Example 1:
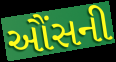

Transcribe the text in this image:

ઔંસની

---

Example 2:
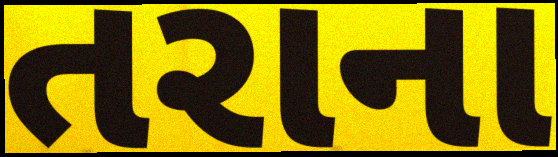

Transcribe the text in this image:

તરાના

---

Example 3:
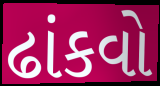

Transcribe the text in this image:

ઢાંકવો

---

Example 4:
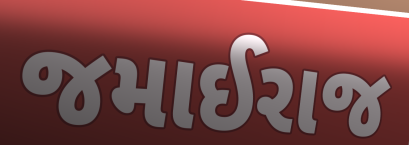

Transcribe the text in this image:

જમાઈરાજ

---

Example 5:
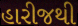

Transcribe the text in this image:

હારીજથી